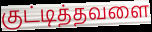
குட்டித்தவளை